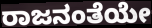
ರಾಜನಂತೆಯೇ